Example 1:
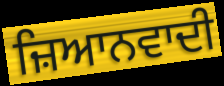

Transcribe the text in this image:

ਜ਼ਿਆਨਵਾਦੀ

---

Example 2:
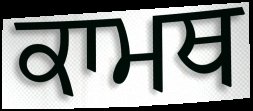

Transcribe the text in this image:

ਕਾਮਥ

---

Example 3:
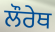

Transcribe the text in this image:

ਲੌਰੇਥ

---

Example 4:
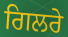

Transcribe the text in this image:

ਗਿਲਰੇ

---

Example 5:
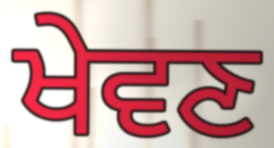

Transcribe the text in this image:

ਖੇਵਣ